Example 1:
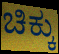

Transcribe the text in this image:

ಚಿಕ್ಕು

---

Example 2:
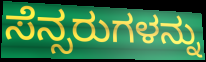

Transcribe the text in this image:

ಸೆನ್ಸರುಗಳನ್ನು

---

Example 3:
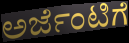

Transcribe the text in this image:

ಅರ್ಜೆಂಟಿಗೆ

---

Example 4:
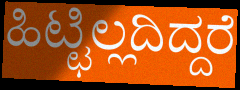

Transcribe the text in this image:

ಹಿಟ್ಟಿಲ್ಲದಿದ್ದರೆ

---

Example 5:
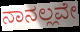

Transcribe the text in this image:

ನಾನಲ್ಲವೇ